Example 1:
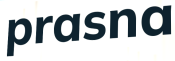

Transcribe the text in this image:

prasna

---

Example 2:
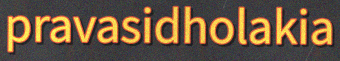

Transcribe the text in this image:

pravasidholakia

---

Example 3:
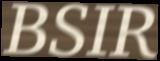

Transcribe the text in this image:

BSIR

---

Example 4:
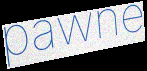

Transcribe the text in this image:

pawne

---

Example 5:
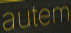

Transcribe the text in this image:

autem